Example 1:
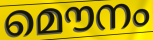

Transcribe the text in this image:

മൌനം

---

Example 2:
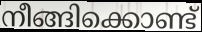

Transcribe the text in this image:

നീങ്ങിക്കൊണ്ട്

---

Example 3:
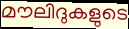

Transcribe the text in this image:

മൗലിദുകളുടെ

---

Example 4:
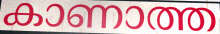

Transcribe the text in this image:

കാണാത്ത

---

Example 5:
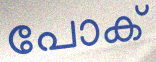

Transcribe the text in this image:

പോക്